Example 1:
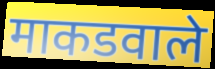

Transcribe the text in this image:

माकडवाले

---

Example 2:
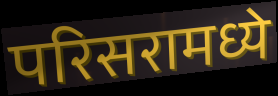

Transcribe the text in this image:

परिसरामध्ये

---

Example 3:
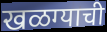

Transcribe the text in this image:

खळग्याची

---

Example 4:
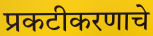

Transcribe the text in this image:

प्रकटीकरणाचे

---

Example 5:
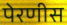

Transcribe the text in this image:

पेरणीस